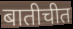
बातीचीत